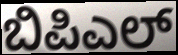
ಬಿಪಿಎಲ್